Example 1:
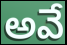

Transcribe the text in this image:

అవే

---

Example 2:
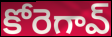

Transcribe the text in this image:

కోరెగావ్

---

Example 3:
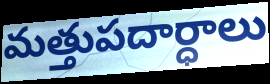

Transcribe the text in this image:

మత్తుపదార్ధాలు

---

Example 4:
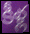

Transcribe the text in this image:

కీళ్ల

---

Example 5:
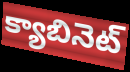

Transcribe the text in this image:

క్యాబినెట్